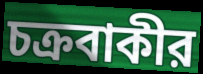
চক্রবাকীর